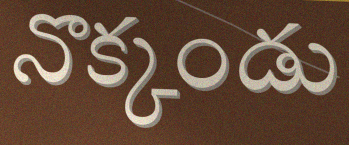
నొక్కండు